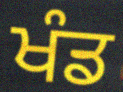
ਖੰਡ